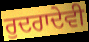
ਰੁਦਰਾਦੇਵੀ